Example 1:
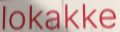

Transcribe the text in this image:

lokakke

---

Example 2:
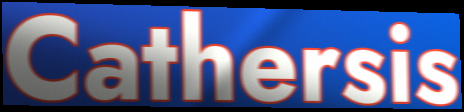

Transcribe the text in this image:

Cathersis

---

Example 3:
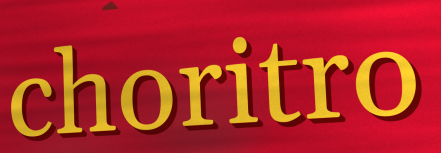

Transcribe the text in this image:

choritro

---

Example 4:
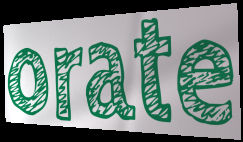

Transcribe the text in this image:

orate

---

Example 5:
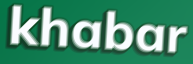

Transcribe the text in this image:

khabar